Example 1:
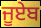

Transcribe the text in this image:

ਜੂਏਬ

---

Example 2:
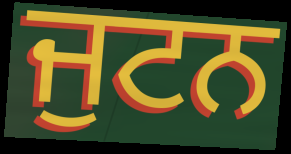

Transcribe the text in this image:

ਜੁਟਨ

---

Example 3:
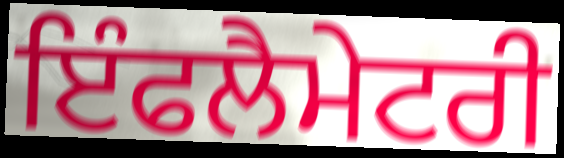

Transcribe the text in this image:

ਇੰਫਲੈਮੇਟਰੀ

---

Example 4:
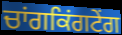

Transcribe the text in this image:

ਚਾਂਗਕਿਂਗਟੇਂਗ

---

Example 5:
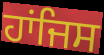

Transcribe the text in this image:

ਹਾਂਜਿਸ